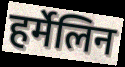
हर्मेलिन